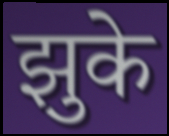
झुके